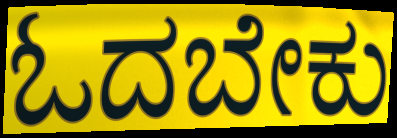
ಓದಬೇಕು